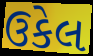
ઉકેલ